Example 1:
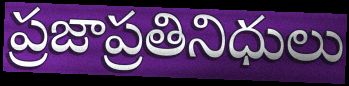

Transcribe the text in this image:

ప్రజాప్రతినిధులు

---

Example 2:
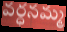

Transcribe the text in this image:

వర్ధనమ్మ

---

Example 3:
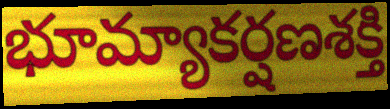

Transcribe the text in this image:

భూమ్యాకర్షణశక్తి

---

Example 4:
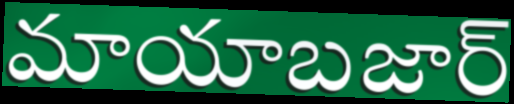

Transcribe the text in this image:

మాయాబజార్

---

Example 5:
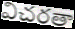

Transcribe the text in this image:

విచరతా